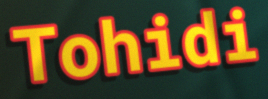
Tohidi